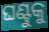
ଘଣ୍ଟୁକୁ